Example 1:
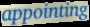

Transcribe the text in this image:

appointing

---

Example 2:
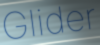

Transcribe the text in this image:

Glider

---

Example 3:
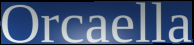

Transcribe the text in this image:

Orcaella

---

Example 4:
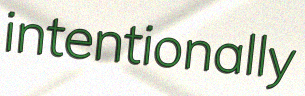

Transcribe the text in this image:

intentionally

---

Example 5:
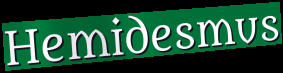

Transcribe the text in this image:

Hemidesmus